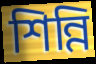
শিন্নি